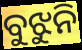
ବୁଝୁନି